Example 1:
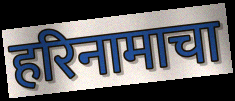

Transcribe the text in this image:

हरिनामाचा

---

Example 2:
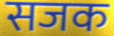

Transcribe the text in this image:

सजक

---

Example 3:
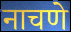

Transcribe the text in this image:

नाचणे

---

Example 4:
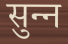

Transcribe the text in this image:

सुन्‍न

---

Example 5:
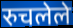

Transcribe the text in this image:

रुचलेले